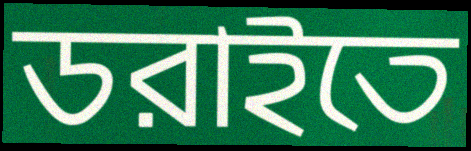
ডরাইতে